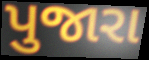
પુજારા